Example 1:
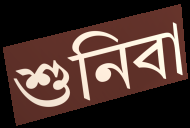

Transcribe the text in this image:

শুনিবা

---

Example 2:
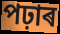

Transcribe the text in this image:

পঢ়াৰ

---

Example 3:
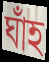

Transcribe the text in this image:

ঘাঁহ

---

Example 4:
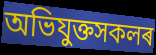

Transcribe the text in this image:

অভিযুক্তসকলৰ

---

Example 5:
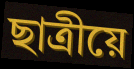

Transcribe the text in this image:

ছাত্ৰীয়ে